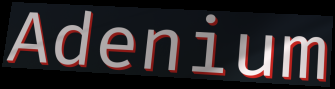
Adenium